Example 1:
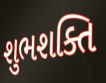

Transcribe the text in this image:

શુભશક્તિ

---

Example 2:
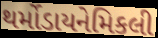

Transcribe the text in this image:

થર્મોડાયનેમિકલી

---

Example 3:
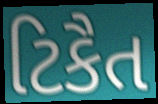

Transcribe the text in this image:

ટિકૈત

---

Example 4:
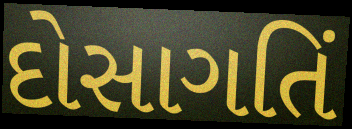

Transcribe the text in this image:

દોસાગતિં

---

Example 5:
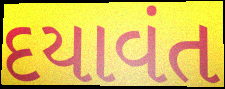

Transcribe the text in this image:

દયાવંત